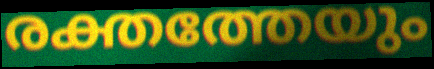
രക്തത്തേയും